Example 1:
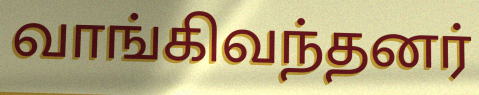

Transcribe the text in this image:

வாங்கிவந்தனர்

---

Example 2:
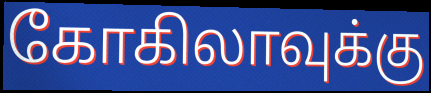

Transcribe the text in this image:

கோகிலாவுக்கு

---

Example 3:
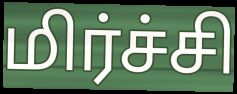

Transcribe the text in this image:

மிர்ச்சி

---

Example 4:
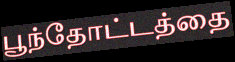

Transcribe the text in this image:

பூந்தோட்டத்தை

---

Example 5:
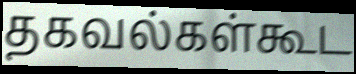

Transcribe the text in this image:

தகவல்கள்கூட